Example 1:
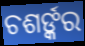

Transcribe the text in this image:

ଚଶର୍ଙ୍କର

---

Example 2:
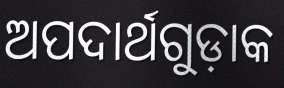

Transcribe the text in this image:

ଅପଦାର୍ଥଗୁଡ଼ାକ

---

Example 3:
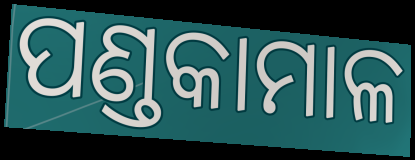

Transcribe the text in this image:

ପଣ୍ଡକାମାଳ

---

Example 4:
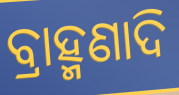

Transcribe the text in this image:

ବ୍ରାହ୍ମଣାଦି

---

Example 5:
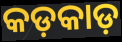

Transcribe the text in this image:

କଡ଼କାଡ଼